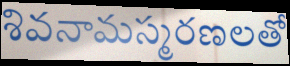
శివనామస్మరణలతో